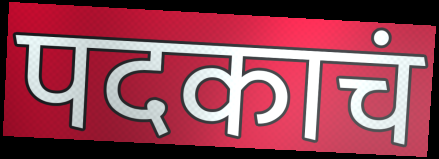
पदकाचं